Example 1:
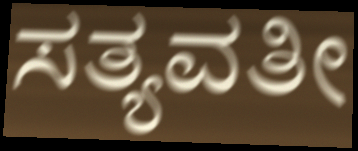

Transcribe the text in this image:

ಸತ್ಯವತೀ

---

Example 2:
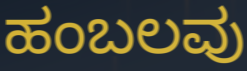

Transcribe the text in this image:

ಹಂಬಲವು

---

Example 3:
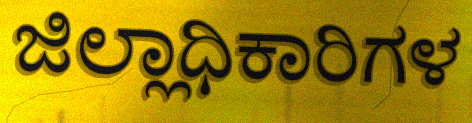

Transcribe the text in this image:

ಜಿಲ್ಲಾಧಿಕಾರಿಗಳ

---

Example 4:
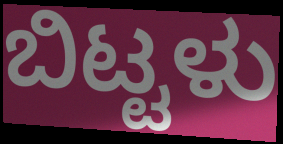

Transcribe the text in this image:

ಬಿಟ್ಟಳು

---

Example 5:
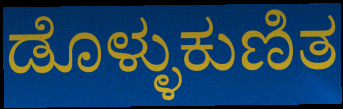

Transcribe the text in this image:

ಡೊಳ್ಳುಕುಣಿತ